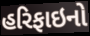
હરિફાઇનો